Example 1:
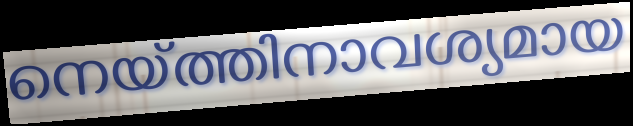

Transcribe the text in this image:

നെയ്ത്തിനാവശ്യമായ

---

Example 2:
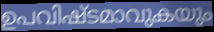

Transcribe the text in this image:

ഉപവിഷ്ടമാവുകയും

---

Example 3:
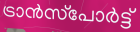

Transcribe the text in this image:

ട്രാൻസ്‌പോർട്ട്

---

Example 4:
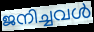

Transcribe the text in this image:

ജനിച്ചവൾ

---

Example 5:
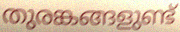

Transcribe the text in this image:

തുരങ്കങ്ങളുണ്ട്